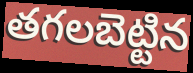
తగలబెట్టిన